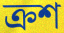
ক্রশ